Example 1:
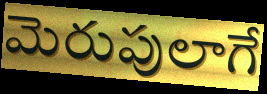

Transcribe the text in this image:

మెరుపులాగే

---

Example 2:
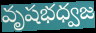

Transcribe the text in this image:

వృషభధ్వజ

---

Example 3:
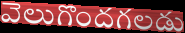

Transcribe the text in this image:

వెలుగొందగలడు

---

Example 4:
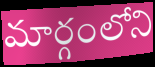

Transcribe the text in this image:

మార్గంలోని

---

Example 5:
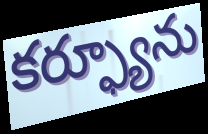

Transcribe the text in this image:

కర్ఫ్యూను